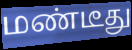
மண்டீது